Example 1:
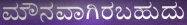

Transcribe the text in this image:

ಮೌನವಾಗಿರಬಹುದು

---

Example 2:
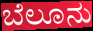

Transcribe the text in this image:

ಬೆಲೂನು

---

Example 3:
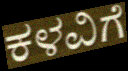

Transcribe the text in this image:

ಕಳವಿಗೆ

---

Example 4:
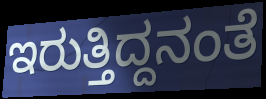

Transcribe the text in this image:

ಇರುತ್ತಿದ್ದನಂತೆ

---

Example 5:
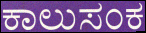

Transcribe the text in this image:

ಕಾಲುಸಂಕ